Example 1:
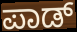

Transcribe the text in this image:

ಪಾಡ್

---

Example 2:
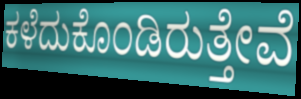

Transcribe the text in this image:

ಕಳೆದುಕೊಂಡಿರುತ್ತೇವೆ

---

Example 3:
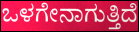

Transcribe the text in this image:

ಒಳಗೇನಾಗುತ್ತಿದೆ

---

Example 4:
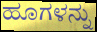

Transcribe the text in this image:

ಹೂಗಳನ್ನು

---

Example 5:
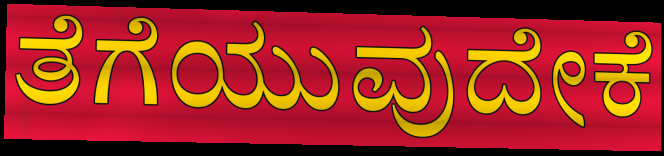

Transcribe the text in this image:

ತೆಗೆಯುವುದೇಕೆ